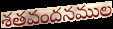
శతవందనముల